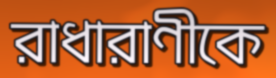
রাধারাণীকে